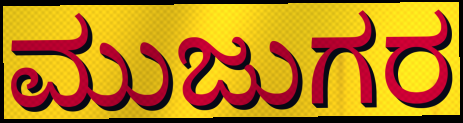
ಮುಜುಗರ